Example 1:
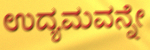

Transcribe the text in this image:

ಉದ್ಯಮವನ್ನೇ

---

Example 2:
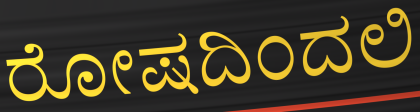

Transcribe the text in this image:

ರೋಷದಿಂದಲಿ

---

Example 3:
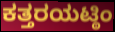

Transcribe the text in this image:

ಕತ್ತರಯಟ್ಠಿಂ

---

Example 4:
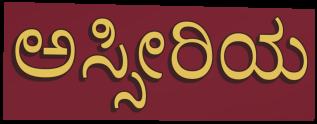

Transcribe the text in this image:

ಅಸ್ಸೀರಿಯ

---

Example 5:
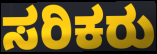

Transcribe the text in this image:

ಸರಿಕರು